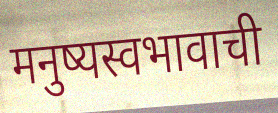
मनुष्यस्वभावाची